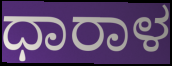
ಧಾರಾಳ